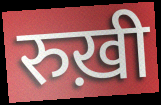
रुख़ी